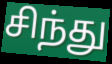
சிந்து